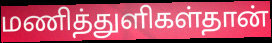
மணித்துளிகள்தான்